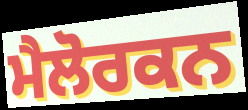
ਮੈਲੋਰਕਨ